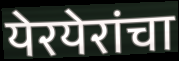
येरयेरांचा